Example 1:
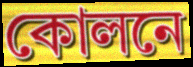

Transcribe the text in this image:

কোলনে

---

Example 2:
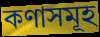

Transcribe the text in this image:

কণাসমূহ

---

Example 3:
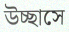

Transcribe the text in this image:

উচ্ছাসে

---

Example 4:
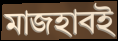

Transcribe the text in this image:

মাজহাবই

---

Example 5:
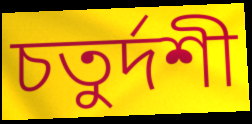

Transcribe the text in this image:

চতুর্দশী